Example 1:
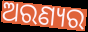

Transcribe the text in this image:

ଅରଣ୍ୟର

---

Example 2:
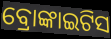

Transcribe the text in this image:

ବ୍ରୋଙ୍କାଇଟିସ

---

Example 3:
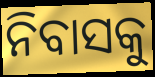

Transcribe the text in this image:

ନିବାସକୁ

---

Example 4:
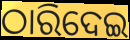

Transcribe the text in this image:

ଠାରିଦେଇ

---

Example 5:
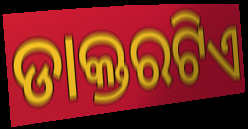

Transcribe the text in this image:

ଡାକ୍ତରଟିଏ